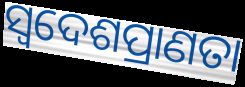
ସ୍ଵଦେଶପ୍ରାଣତା